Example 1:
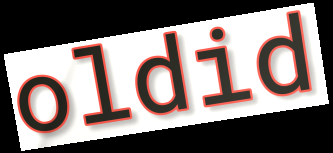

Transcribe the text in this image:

oldid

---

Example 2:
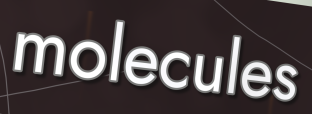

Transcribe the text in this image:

molecules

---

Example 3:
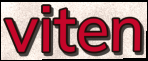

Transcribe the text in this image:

viten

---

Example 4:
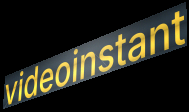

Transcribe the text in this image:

videoinstant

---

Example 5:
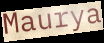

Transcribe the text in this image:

Maurya